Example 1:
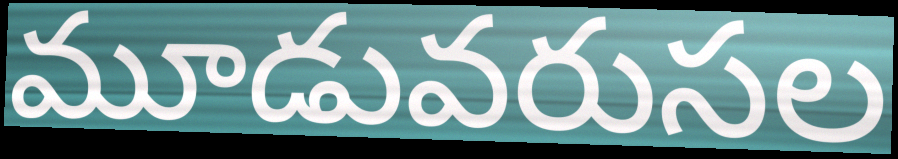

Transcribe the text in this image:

మూడువరుసల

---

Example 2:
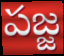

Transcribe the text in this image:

పజ్జ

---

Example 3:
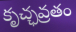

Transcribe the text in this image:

కృచ్ఛవ్రతం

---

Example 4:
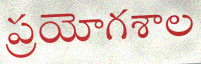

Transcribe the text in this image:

ప్రయోగశాల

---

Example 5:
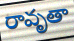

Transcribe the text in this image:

రావృతా